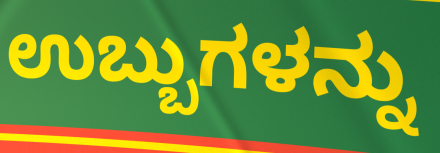
ಉಬ್ಬುಗಳನ್ನು